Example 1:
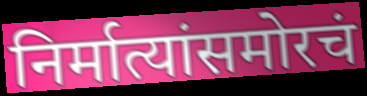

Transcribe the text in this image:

निर्मात्यांसमोरचं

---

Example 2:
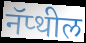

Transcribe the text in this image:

नॅप्थील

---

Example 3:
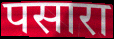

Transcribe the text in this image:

पसारा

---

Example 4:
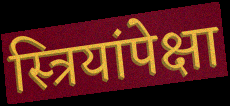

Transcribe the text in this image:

स्त्रियांपेक्षा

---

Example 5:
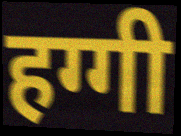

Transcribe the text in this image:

हग्गी